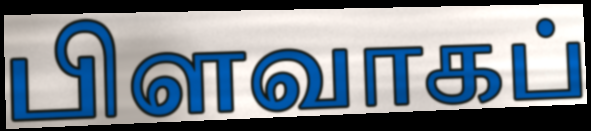
பிளவாகப்